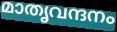
മാതൃവന്ദനം